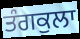
ਤੰਗਕੁਲਾ